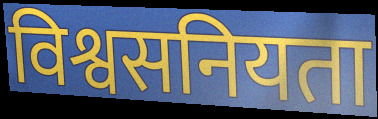
विश्वसनियता